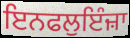
ਇਨਫਲੁਇੰਜ਼ਾ